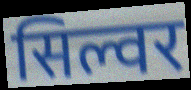
सिल्वर